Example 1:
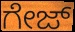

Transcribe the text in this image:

ಗೇಜ್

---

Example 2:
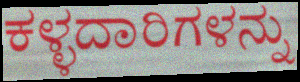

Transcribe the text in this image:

ಕಳ್ಳದಾರಿಗಳನ್ನು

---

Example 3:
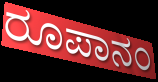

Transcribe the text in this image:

ರೂಪಾನಂ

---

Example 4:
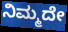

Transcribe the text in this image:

ನಿಮ್ಮದೇ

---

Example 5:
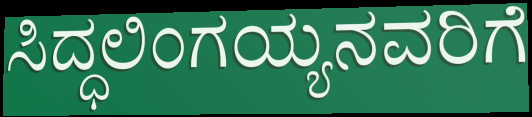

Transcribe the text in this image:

ಸಿದ್ಧಲಿಂಗಯ್ಯನವರಿಗೆ